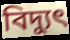
বিদ্যুৎ